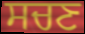
ਸਚਣ